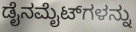
ಡೈನಮೈಟ್‌ಗಳನ್ನು